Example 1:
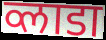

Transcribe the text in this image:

व्लाडा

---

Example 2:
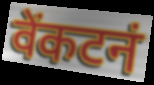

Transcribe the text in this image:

वेंकटनं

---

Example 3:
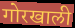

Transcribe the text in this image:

गोरखाली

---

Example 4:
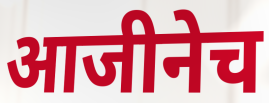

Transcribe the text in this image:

आजीनेच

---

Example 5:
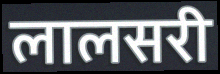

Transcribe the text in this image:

लालसरी